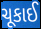
ચૂકાઈ